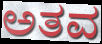
ಅತವ